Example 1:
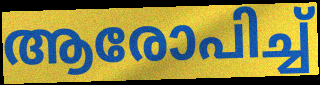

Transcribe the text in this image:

ആരോപിച്ച്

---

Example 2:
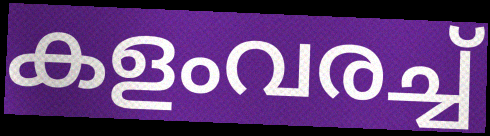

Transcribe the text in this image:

കളംവരച്ച്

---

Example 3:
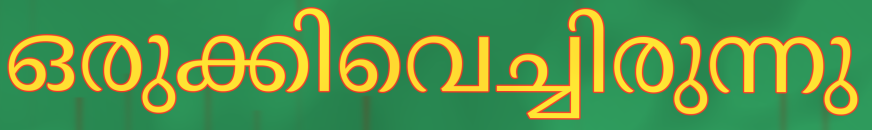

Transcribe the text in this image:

ഒരുക്കിവെച്ചിരുന്നു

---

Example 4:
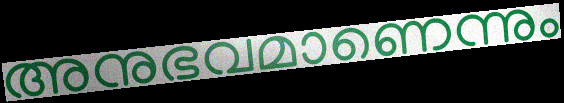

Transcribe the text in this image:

അനുഭവമാണെന്നും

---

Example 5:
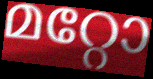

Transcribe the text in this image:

മറ്റോ